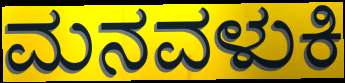
ಮನವಳುಕಿ